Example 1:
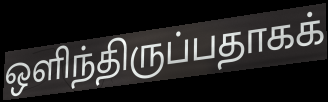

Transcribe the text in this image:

ஒளிந்திருப்பதாகக்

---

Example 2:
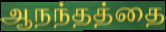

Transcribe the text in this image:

ஆநந்தத்தை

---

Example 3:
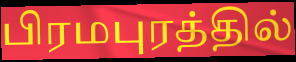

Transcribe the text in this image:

பிரமபுரத்தில்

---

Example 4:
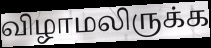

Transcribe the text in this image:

விழாமலிருக்க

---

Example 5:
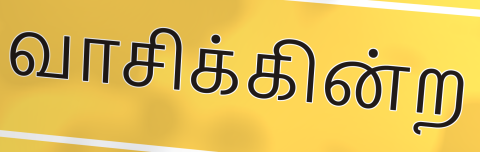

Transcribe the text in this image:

வாசிக்கின்ற